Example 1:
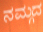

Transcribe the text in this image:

ನಮ್ಗದ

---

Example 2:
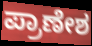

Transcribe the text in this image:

ಪ್ರಾಣೇಶ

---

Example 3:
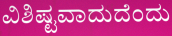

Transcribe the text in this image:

ವಿಶಿಷ್ಟವಾದುದೆಂದು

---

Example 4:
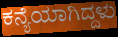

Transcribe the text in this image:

ಕನ್ಯೆಯಾಗಿದ್ದಳು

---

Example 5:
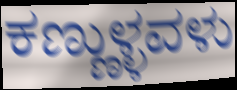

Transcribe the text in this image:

ಕಣ್ಣುಳ್ಳವಳು